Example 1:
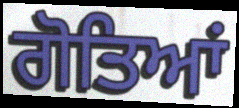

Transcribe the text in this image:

ਗੋਤਿਆਂ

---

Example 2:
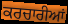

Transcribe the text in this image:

ਕਰਚਾਰੀਆਂ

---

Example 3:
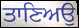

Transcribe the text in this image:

ਤਾਣਿਅਉ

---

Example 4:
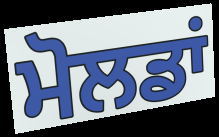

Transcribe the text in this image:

ਮੋਲਡਾਂ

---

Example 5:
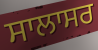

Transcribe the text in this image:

ਸਾਲਾਸਰ